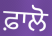
ਫ਼ਾਲੋ